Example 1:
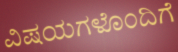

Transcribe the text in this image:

ವಿಷಯಗಳೊಂದಿಗೆ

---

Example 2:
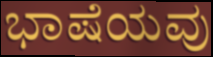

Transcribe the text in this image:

ಭಾಷೆಯವು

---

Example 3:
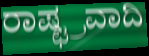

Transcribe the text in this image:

ರಾಷ್ಟ್ರವಾದಿ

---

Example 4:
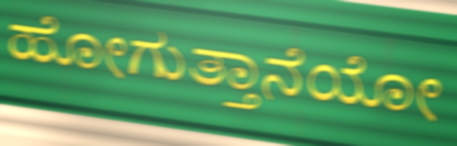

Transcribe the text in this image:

ಹೋಗುತ್ತಾನೆಯೋ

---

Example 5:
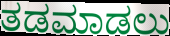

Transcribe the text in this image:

ತಡಮಾಡಲು